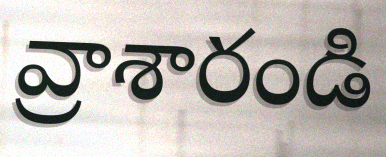
వ్రాశారండి